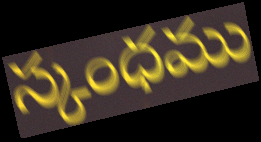
స్కంధము